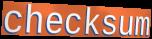
checksum